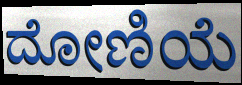
ದೋಣಿಯೆ